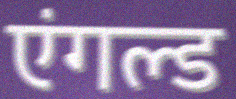
एंगल्ड